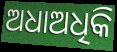
ଅଧାଅଧିକି